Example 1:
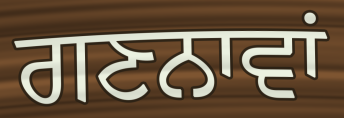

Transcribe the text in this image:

ਗਣਨਾਵਾਂ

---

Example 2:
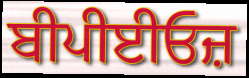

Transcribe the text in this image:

ਬੀਪੀਈਓਜ਼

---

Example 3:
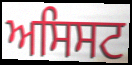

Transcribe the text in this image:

ਅਸਿਸਟ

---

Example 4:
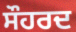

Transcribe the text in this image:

ਸੌਹਰਦ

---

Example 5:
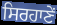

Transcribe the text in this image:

ਸਿਰਹਾਣੇਂ